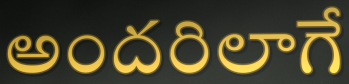
అందరిలాగే